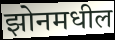
झोनमधील